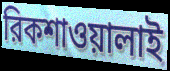
রিকশাওয়ালাই